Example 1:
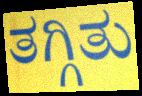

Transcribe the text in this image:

ತಗ್ಗಿತು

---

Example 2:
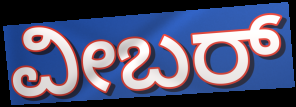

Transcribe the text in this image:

ವೀಬರ್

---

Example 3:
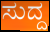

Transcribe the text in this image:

ಸುದ್ದ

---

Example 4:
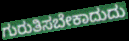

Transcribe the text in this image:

ಗುರುತಿಸಬೇಕಾದುದು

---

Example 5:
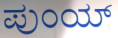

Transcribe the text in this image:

ಪುಂಯ್